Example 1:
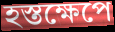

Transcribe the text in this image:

হস্তক্ষেপে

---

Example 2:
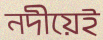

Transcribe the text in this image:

নদীয়েই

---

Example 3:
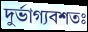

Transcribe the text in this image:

দুৰ্ভাগ্যবশতঃ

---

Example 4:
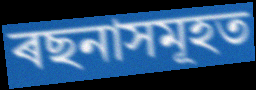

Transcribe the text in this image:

ৰছনাসমূহত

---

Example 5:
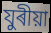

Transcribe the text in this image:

যুৰীয়া